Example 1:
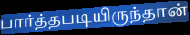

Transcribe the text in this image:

பார்த்தபடியிருந்தான்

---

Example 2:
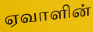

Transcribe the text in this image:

ஏவாளின்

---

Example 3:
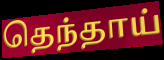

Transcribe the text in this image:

தெந்தாய்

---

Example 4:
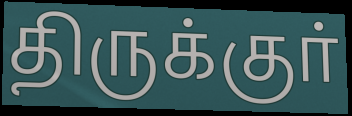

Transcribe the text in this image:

திருக்குர்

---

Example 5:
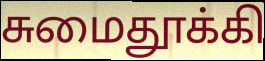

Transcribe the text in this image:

சுமைதூக்கி